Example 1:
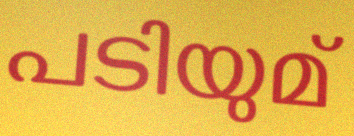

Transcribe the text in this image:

പടിയുമ്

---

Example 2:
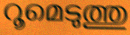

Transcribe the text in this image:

റൂമെടുത്തു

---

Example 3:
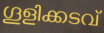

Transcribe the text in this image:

ഗൂളിക്കടവ്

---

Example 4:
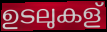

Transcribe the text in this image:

ഉടലുകള്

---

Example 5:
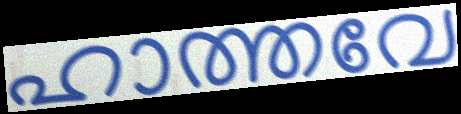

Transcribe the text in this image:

ഹാത്തവേ